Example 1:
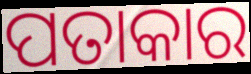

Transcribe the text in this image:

ପତାକାର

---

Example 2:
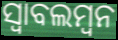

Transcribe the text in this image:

ସ୍ୱାବଲମ୍ବନ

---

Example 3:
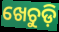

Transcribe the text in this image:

ଖେଚୁଡ଼ି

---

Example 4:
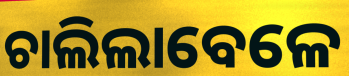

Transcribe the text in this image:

ଚାଲିଲାବେଳେ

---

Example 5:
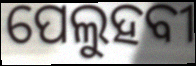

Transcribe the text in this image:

ପେଲୁହବୀ